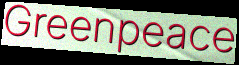
Greenpeace